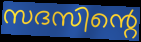
സദസിന്റെ